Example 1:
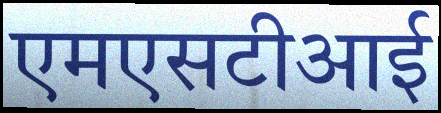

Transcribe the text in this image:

एमएसटीआई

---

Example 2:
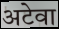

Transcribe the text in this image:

अटेवा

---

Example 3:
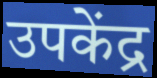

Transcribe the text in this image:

उपकेंद्र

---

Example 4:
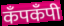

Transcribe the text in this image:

कँपकँपी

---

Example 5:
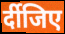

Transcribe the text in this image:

र्दीजिए